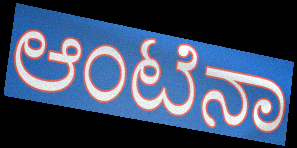
ಆಂಟೆನಾ